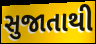
સુજાતાથી